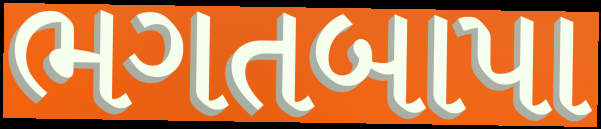
ભગતબાપા